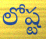
లోష్ట